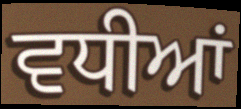
ਵਧੀਆਂ